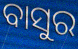
ବାସୁର